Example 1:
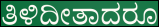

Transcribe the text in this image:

ತಿಳಿದೀತಾದರೂ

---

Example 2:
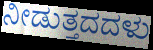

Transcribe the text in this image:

ನೀಡುತ್ತದದಳು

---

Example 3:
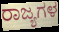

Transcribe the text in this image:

ರಾಜ್ಯಗಳ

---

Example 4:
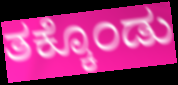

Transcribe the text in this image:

ತಕ್ಕೊಂಡು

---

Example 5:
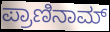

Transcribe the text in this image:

ಪ್ರಾಣಿನಾಮ್